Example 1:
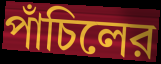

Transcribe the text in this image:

পাঁচিলের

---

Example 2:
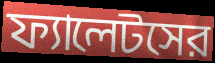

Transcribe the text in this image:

ফ্যালেটসের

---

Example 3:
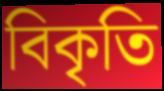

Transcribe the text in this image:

বিকৃতি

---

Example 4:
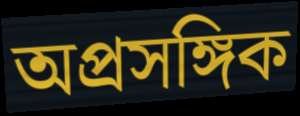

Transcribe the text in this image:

অপ্রসঙ্গিক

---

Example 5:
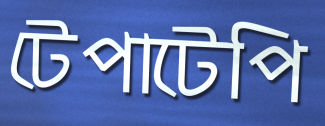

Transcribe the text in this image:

টেপাটেপি